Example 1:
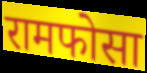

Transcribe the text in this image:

रामफोसा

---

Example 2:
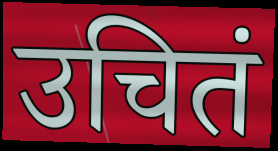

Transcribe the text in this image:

उचितं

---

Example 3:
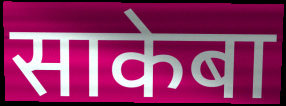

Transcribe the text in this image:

साकेबा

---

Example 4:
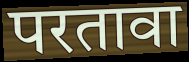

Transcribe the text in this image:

परतावा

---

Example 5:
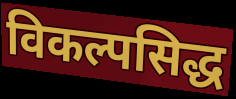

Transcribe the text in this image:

विकल्पसिद्ध